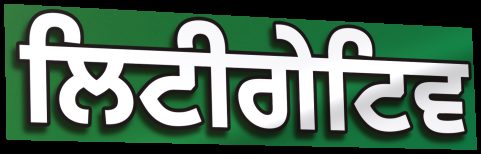
ਲਿਟੀਗੇਟਿਵ